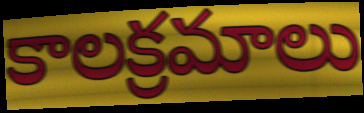
కాలక్రమాలు